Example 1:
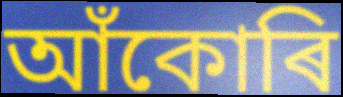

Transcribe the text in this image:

আঁকোৰি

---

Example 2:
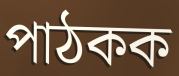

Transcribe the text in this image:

পাঠকক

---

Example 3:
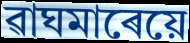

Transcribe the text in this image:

ৱাঘমাৰেয়ে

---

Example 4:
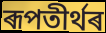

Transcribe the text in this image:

ৰূপতীৰ্থৰ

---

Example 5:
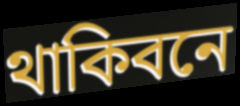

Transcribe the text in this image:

থাকিবনে